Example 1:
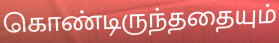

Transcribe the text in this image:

கொண்டிருந்ததையும்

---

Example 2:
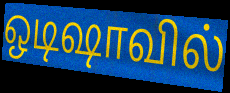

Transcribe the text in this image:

ஒடிஷாவில்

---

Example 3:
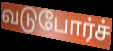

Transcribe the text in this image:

வடுபோர்ச்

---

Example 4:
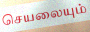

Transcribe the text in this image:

செயலையும்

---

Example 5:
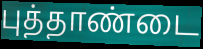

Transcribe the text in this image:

புத்தாண்டை